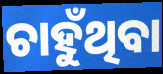
ଚାହୁଁଥିବା